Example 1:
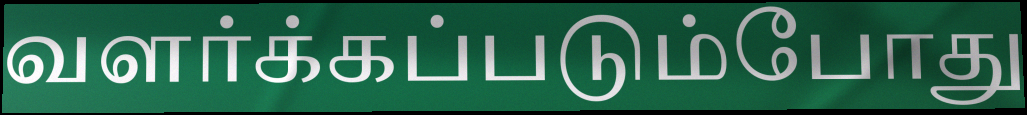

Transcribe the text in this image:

வளர்க்கப்படும்போது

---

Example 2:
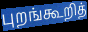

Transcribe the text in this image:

புறங்கூறித்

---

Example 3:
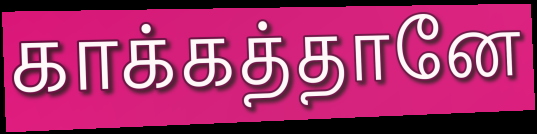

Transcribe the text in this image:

காக்கத்தானே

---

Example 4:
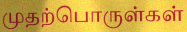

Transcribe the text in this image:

முதற்பொருள்கள்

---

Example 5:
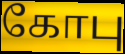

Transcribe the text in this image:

கோபு